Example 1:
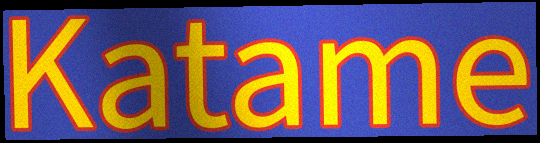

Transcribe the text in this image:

Katame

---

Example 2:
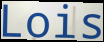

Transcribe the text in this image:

Lois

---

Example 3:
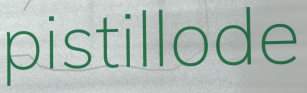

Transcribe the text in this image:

pistillode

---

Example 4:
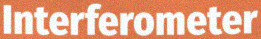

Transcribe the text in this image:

Interferometer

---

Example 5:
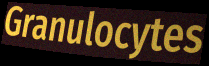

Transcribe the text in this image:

Granulocytes